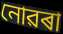
নোৱৰা